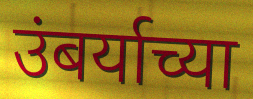
उंबर्याच्या